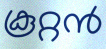
കൂറ്റൻ